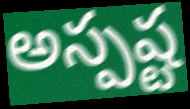
అస్పష్ట